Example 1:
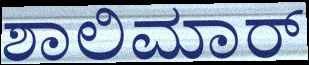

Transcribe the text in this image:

ಶಾಲಿಮಾರ್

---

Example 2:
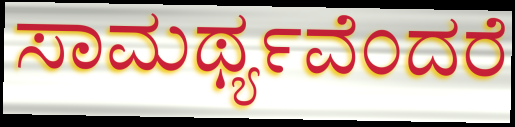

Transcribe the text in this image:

ಸಾಮರ್ಥ್ಯವೆಂದರೆ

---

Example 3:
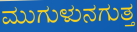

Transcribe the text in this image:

ಮುಗುಳುನಗುತ್ತ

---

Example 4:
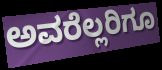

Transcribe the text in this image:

ಅವರೆಲ್ಲರಿಗೂ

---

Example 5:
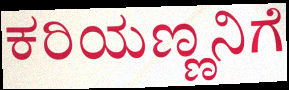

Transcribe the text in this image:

ಕರಿಯಣ್ಣನಿಗೆ